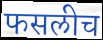
फसलीच